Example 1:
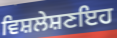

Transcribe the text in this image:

ਵਿਸ਼ਲੇਸ਼ਣਇਹ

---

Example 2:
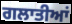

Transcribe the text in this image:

ਗਲਾਤੀਆਂ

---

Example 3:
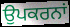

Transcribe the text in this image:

ਉਪਕਰਨਾਂ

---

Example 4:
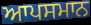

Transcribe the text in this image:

ਆਪਸਮਾਨ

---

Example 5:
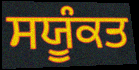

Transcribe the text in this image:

ਸਯੂੰਕਤ